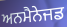
ਅਨਮੈਨੇਜਡ